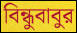
বিন্ধুবাবুর